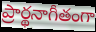
ప్రార్థనాగీతంగా